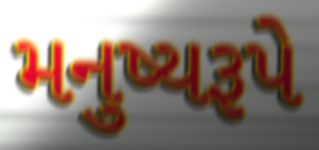
મનુષ્યરૂપે